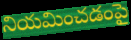
నియమించడంపై